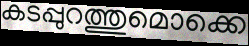
കടപ്പുറത്തുമൊക്കെ